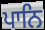
ਪਾਨਿ